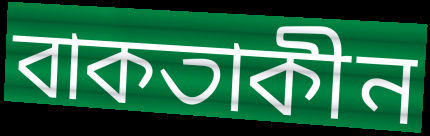
বাকতাকীন